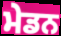
ਮੇਡਨ